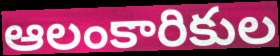
ఆలంకారికుల